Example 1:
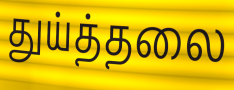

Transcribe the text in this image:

துய்த்தலை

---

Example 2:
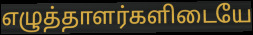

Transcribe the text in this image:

எழுத்தாளர்களிடையே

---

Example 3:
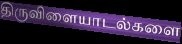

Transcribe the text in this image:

திருவிளையாடல்களை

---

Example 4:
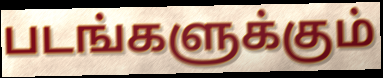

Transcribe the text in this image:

படங்களுக்கும்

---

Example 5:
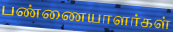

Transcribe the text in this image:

பண்ணையாளர்கள்